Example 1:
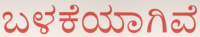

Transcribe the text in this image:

ಬಳಕೆಯಾಗಿವೆ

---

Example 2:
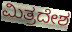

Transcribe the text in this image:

ಮಿತ್ರದೇಶ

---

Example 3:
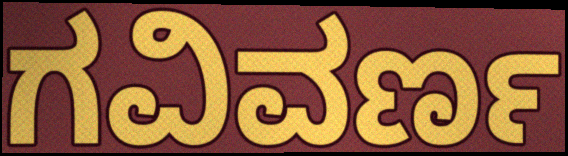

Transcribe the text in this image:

ಗವಿವರ್ಣ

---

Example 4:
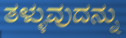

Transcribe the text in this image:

ತಳ್ಳುವುದನ್ನು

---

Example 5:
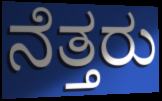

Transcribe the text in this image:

ನೆತ್ತರು